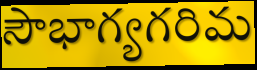
సౌభాగ్యగరిమ